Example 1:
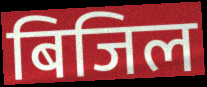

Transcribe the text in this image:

बिजिल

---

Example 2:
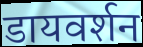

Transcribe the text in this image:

डायवर्शन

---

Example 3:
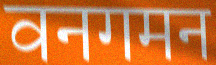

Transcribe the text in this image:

वनगमन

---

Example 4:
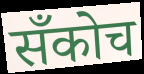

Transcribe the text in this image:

सँकोच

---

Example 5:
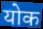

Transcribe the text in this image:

योक